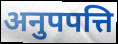
अनुपपत्ति